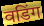
वडिंग